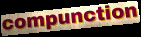
compunction